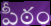
పీఠం